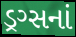
ડ્રગ્સનાં